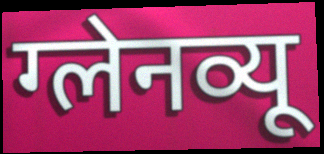
ग्लेनव्यू